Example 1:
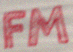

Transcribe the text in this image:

FM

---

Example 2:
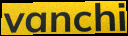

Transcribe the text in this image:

vanchi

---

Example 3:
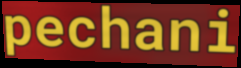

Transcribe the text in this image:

pechani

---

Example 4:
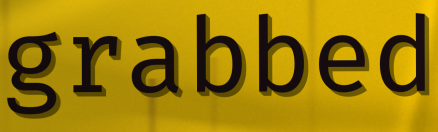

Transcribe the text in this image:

grabbed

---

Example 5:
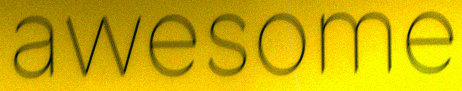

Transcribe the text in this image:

awesome